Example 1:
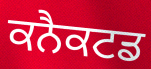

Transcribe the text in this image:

ਕਨੈਕਟਡ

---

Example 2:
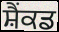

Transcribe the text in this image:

ਸ਼ੈਂਕਡ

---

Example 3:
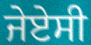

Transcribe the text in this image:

ਜੇਏਸੀ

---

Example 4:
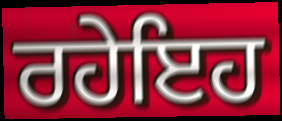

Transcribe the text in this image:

ਰਹੇਇਹ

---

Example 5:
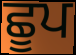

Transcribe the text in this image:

ਛੂਪ